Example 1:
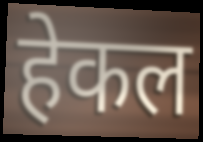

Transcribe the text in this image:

हेकल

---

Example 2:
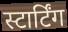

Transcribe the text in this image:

स्टार्टिंग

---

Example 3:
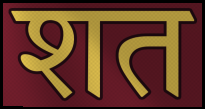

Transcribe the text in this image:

शत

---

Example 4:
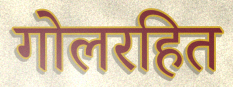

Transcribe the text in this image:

गोलरहित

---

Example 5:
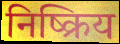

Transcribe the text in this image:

निष्क्रिय